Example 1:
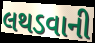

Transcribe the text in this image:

લથડવાની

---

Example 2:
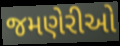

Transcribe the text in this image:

જમણેરીઓ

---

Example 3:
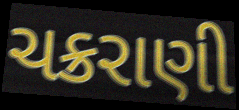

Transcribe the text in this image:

ચક્રરાણી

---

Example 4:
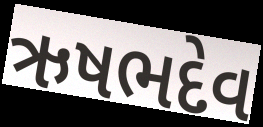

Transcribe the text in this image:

ઋષભદેવ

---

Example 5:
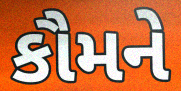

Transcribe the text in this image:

કૌમને